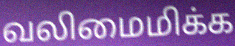
வலிமைமிக்க